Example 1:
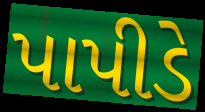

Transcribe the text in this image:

પાપીડે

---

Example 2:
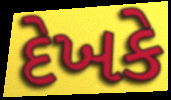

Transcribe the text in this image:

દેખકે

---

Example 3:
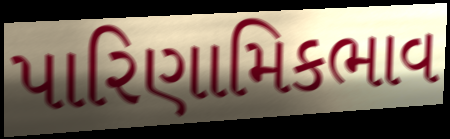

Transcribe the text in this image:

પારિણામિકભાવ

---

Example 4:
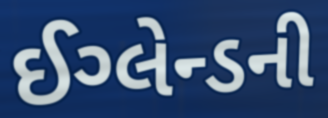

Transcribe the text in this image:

ઈગ્લેન્ડની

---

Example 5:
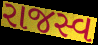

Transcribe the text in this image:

રાજસ્વ